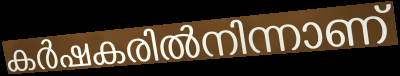
കർഷകരിൽനിന്നാണ്